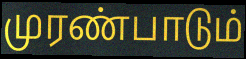
முரண்பாடும்